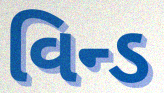
વિન્ડ